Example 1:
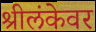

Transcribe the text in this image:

श्रीलंकेवर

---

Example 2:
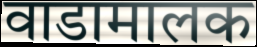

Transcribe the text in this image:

वाडामालक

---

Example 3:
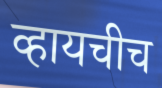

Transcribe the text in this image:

व्हायचीच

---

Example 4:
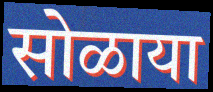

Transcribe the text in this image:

सोळाया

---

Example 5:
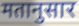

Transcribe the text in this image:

मतानुसार